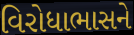
વિરોધાભાસને